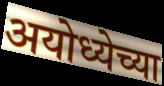
अयोध्येच्या